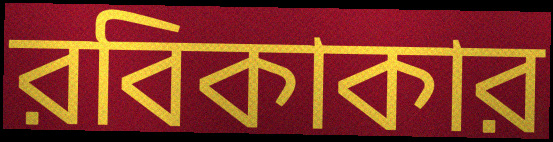
রবিকাকার